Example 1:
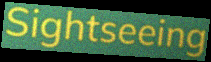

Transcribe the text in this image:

Sightseeing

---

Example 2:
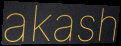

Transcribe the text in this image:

akash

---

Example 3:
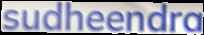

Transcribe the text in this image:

sudheendra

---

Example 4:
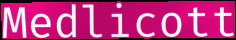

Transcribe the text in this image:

Medlicott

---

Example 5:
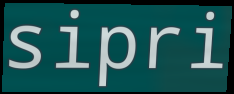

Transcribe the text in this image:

sipri